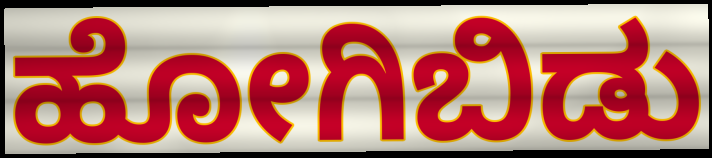
ಹೋಗಿಬಿಡು